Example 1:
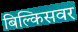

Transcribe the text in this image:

बिल्किसवर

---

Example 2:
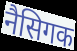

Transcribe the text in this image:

नैसिगक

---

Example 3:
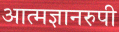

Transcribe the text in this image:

आत्मज्ञानरुपी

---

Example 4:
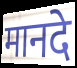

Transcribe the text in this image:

मानदे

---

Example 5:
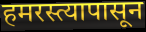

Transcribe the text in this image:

हमरस्त्यापासून